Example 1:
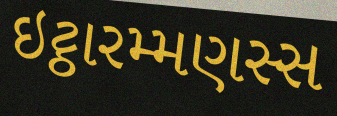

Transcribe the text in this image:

ઇટ્ઠારમ્મણસ્સ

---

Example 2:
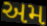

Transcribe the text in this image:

અમ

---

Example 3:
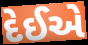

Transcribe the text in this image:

દેઈએ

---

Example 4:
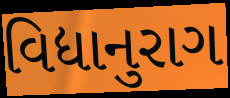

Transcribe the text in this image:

વિદ્યાનુરાગ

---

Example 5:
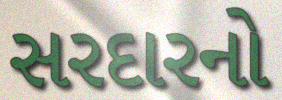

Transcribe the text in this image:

સરદારનો